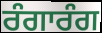
ਰੰਗਾਰੰਗ